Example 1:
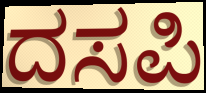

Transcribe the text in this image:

ದಸಪಿ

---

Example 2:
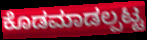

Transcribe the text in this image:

ಕೊಡಮಾಡಲ್ಪಟ್ಟ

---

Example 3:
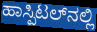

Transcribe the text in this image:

ಹಾಸ್ಪಿಟಲ್‌ನಲ್ಲಿ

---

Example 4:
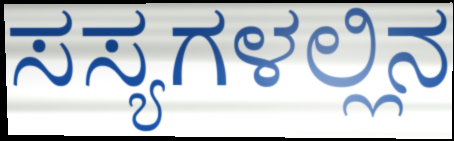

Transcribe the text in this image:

ಸಸ್ಯಗಳಲ್ಲಿನ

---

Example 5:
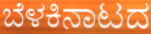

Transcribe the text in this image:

ಬೆಳಕಿನಾಟದ